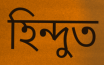
হিন্দুত